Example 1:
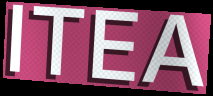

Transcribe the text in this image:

ITEA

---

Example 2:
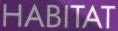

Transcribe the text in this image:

HABITAT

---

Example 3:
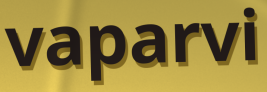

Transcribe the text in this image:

vaparvi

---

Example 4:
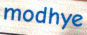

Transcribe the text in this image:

modhye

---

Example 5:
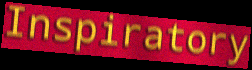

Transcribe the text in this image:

Inspiratory